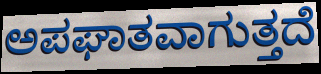
ಅಪಘಾತವಾಗುತ್ತದೆ